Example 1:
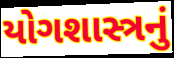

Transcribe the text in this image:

યોગશાસ્ત્રનું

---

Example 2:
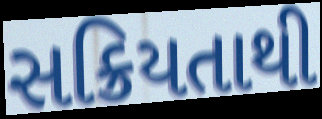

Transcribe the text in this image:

સક્રિયતાથી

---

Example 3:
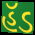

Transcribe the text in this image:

હૅડ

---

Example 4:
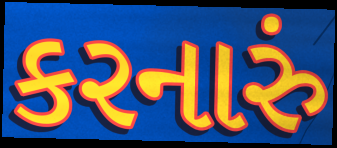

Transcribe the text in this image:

કરનારું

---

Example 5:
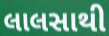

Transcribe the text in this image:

લાલસાથી